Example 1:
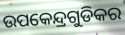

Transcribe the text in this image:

ଉପକେନ୍ଦ୍ରଗୁଡିକର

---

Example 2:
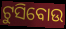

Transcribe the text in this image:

ଟୁସିବୋଉ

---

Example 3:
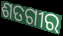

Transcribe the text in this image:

ଶତଗୀର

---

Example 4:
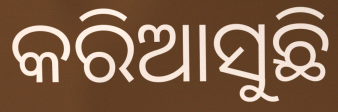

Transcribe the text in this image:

କରିଆସୁଛି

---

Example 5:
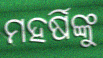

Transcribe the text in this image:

ମହର୍ଷିଙ୍କୁ